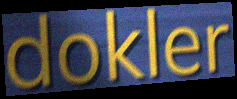
dokler